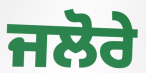
ਜਲੋਰੇ